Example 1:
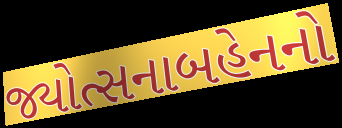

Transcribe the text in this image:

જ્યોત્સનાબહેનનો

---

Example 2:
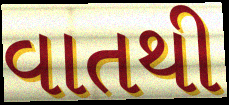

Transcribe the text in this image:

વાતથી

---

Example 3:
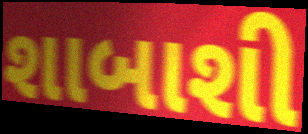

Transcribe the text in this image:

શાબાશી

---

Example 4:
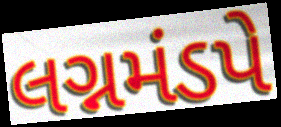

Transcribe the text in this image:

લગ્નમંડપે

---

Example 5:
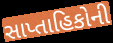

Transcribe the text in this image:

સાપ્તાહિકોની